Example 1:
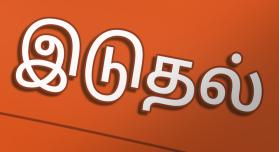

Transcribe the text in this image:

இடுதல்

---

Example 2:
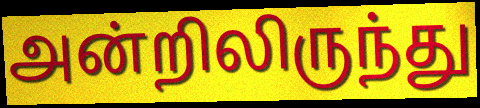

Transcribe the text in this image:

அன்றிலிருந்து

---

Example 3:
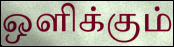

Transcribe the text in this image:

ஒளிக்கும்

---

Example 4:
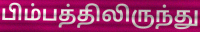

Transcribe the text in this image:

பிம்பத்திலிருந்து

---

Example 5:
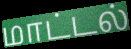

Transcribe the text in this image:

மாட்டல்